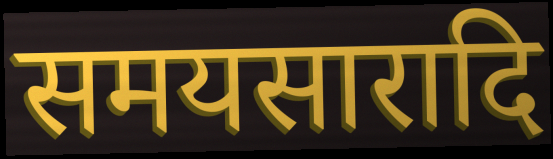
समयसारादि